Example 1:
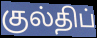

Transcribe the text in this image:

குல்திப்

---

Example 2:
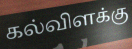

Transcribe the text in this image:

கல்விளக்கு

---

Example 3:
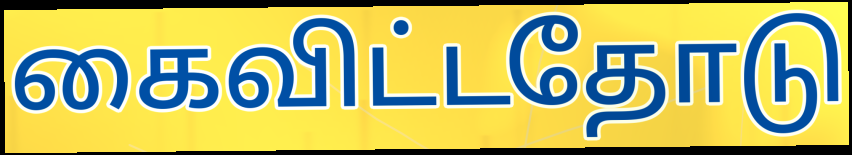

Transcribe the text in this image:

கைவிட்டதோடு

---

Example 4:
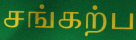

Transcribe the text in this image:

சங்கற்ப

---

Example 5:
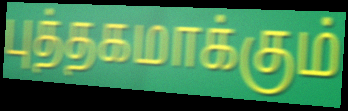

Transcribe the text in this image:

புத்தகமாக்கும்